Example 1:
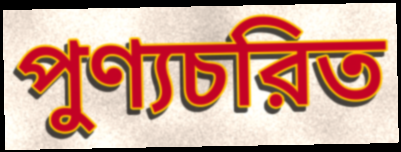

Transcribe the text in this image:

পুণ্যচরিত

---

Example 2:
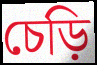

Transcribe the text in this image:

চেড়ি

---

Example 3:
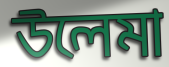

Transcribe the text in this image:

উলেমা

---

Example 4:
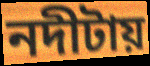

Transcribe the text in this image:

নদীটায়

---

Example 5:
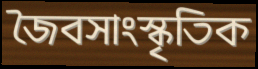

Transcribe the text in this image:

জৈবসাংস্কৃতিক